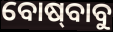
ବୋଷ୍‍ବାବୁ